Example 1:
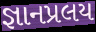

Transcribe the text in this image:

જ્ઞાનપ્રલય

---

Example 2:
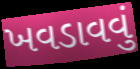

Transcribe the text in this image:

ખવડાવવું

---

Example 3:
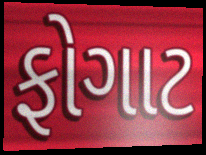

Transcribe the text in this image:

ફોગાટ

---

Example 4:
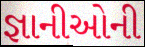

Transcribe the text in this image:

જ્ઞાનીઓની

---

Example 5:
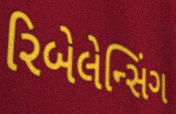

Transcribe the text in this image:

રિબેલેન્સિંગ